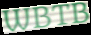
WBTB